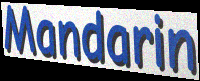
Mandarin